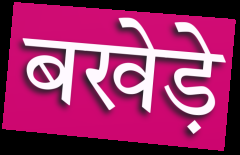
बखेड़े